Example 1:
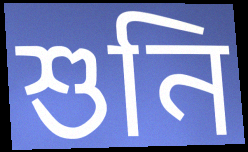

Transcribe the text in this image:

শুনি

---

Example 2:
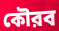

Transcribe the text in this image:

কৌরব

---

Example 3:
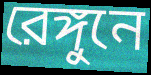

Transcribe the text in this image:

রেঙ্গুনে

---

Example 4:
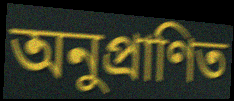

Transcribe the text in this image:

অনুপ্রাণিত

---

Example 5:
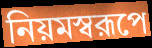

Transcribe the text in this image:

নিয়মস্বরূপে